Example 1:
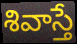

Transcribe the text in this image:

శివాస్తే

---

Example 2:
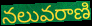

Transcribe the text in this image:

నలువరాణి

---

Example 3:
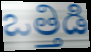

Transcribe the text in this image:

ఒత్తిడి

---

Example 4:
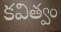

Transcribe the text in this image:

కవిత్వం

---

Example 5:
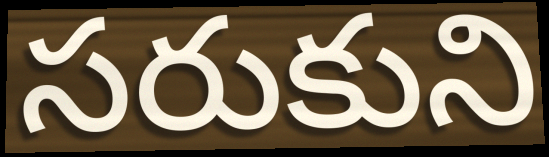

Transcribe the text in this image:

సరుకుని